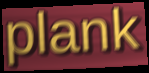
plank